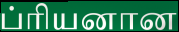
ப்ரியனான